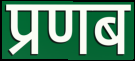
प्रणब